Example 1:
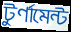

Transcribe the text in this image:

টুর্ণামেন্ট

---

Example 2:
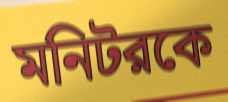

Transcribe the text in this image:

মনিটরকে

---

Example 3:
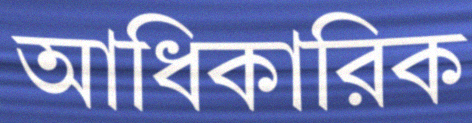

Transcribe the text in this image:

আধিকারিক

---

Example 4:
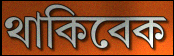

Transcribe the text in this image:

থাকিবেক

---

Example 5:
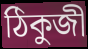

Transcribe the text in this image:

ঠিকুজী